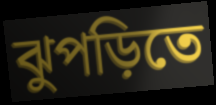
ঝুপড়িতে